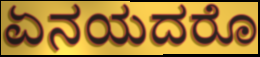
ಏನಯದರೊ